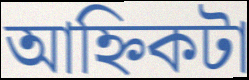
আহ্নিকটা